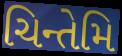
ચિન્તેમિ